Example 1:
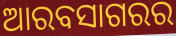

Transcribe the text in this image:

ଆରବସାଗରର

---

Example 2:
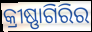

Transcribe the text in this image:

କ୍ରୀଷ୍ଣାଗିରିର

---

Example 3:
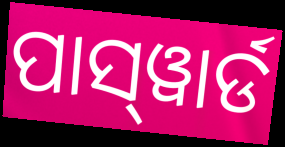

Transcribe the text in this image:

ପାସ୍‌ୱାର୍ଡ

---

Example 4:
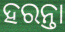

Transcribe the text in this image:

ହରନ୍ତା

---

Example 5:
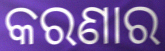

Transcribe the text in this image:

କରଣାର